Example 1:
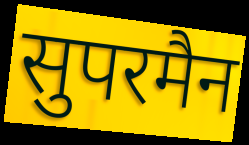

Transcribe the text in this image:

सुपरमैन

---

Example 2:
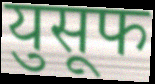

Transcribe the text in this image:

युसूफ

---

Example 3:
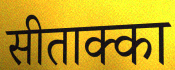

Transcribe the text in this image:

सीताक्का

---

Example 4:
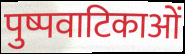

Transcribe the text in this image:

पुष्पवाटिकाओं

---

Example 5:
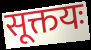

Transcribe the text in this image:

सूक्तयः